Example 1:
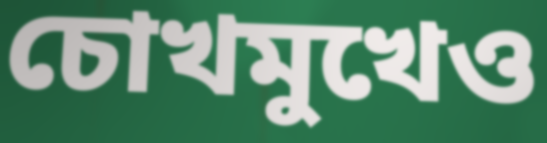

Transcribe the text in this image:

চোখমুখেও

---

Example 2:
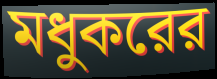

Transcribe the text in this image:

মধুকরের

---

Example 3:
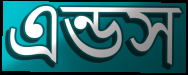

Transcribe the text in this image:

এন্ডস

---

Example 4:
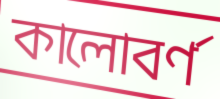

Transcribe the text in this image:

কালোবর্ণ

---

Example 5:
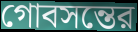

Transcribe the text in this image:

গোবসন্তের